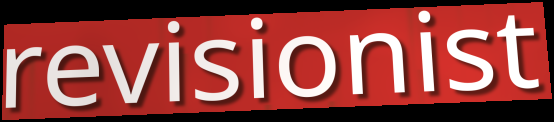
revisionist